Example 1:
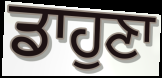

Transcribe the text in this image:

ਡਾਹੁਣਾ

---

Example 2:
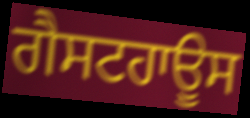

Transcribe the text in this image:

ਗੈਸਟਹਾਊਸ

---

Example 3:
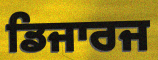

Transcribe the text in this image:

ਡਿਜਾਰਜ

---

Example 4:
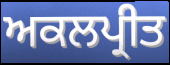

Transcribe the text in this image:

ਅਕਲਪ੍ਰੀਤ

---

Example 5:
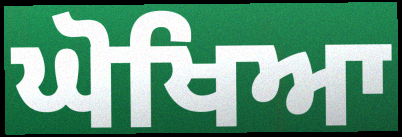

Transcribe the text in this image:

ਘੋਖਿਆ